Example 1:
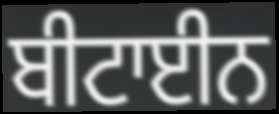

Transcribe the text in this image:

ਬੀਟਾਈਨ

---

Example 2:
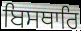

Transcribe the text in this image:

ਬਿਸਥਾਰਿ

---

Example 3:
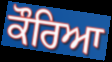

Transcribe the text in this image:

ਕੌਰਿਆ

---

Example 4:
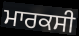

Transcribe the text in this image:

ਮਾਰਕਸੀ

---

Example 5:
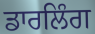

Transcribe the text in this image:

ਡਾਰਲਿੰਗ